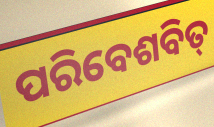
ପରିବେଶବିତ୍